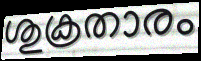
ശുക്രതാരം